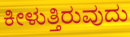
ಕೀಳುತ್ತಿರುವುದು